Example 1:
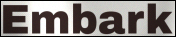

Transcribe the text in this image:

Embark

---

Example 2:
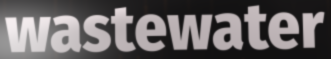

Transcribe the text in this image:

wastewater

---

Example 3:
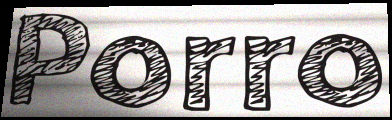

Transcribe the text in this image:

Porro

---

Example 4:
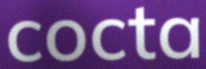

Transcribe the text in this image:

cocta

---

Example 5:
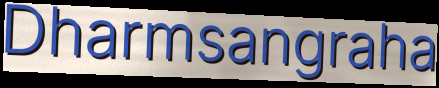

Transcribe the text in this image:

Dharmsangraha